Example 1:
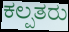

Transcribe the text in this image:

ಕಲ್ಪತರು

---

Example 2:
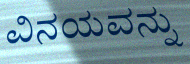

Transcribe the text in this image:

ವಿನಯವನ್ನು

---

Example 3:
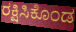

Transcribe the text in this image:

ರಕ್ಷಿಸಿಕೊಂಡ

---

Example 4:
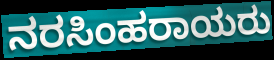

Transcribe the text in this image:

ನರಸಿಂಹರಾಯರು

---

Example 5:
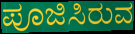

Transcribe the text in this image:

ಪೂಜಿಸಿರುವ